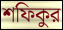
শফিকুর